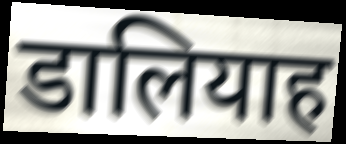
डालियाह